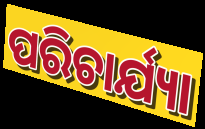
ପରିଚାର୍ଯ୍ୟା